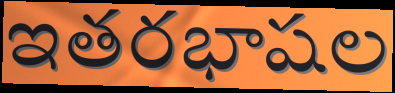
ఇతరభాషల